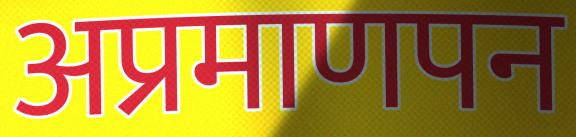
अप्रमाणपन